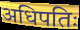
अधिपतिः